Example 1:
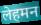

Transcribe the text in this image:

लेहमन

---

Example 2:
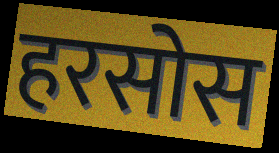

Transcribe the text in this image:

हरसोस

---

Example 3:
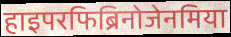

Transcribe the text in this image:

हाइपरफिब्रिनोजेनमिया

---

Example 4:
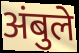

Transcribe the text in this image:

अंबुले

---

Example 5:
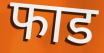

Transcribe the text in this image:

फाड